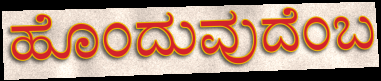
ಹೊಂದುವುದೆಂಬ